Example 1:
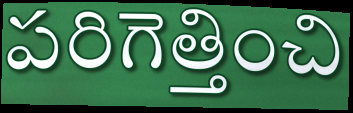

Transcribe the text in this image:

పరిగెత్తించి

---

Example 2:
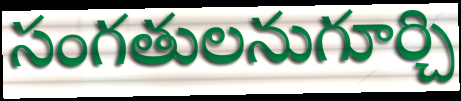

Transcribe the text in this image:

సంగతులనుగూర్చి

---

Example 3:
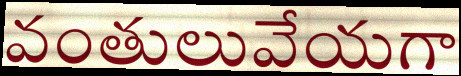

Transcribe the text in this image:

వంతులువేయగా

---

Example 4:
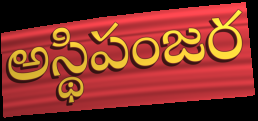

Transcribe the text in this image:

అస్థిపంజర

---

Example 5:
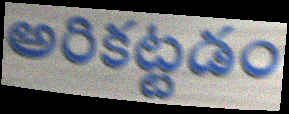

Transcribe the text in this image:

అరికట్టడం